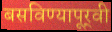
बसविण्यापूर्वी